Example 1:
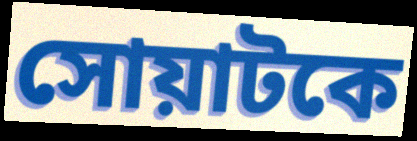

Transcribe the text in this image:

সোয়াটকে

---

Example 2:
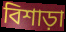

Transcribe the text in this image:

বিশাড়া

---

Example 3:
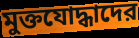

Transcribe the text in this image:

মুক্তযোদ্ধাদের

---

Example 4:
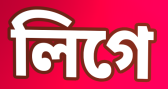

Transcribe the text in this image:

লিগে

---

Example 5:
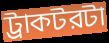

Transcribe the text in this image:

ট্রাকটরটা